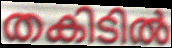
തകിടിൽ